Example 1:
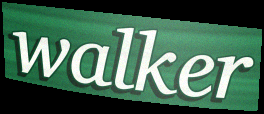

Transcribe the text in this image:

walker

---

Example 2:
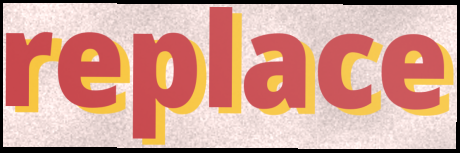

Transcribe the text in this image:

replace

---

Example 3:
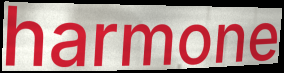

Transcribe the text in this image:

harmone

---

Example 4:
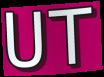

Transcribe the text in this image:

UT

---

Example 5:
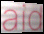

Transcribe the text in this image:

aid